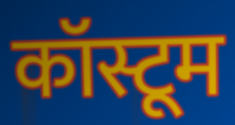
कॉस्टूम